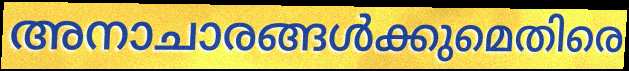
അനാചാരങ്ങൾക്കുമെതിരെ